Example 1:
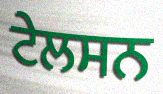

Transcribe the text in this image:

ਟੇਲਸਨ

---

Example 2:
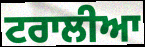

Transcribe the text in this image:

ਟਰਾਲੀਆ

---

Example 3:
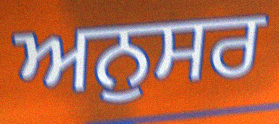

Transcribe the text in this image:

ਅਨੁਸਰ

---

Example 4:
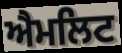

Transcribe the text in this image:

ਐਮਲਿਟ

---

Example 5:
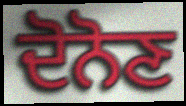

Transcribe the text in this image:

ਦੋਨੋਣ